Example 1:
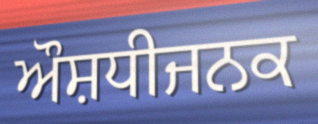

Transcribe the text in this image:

ਔਸ਼ਧੀਜਨਕ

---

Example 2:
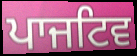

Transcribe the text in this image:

ਪਾਜਟਿਵ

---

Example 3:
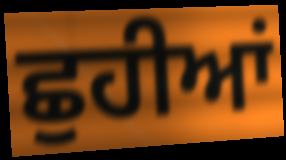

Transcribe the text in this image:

ਛੁਹੀਆਂ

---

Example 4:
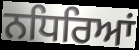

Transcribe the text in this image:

ਨਧਿਰਿਆਂ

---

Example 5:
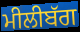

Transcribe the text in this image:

ਮੀਲੀਬੱਗ